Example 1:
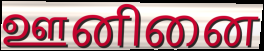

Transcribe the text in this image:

ஊனினை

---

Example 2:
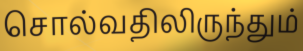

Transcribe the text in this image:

சொல்வதிலிருந்தும்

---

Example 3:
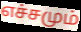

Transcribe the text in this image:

எச்சமும்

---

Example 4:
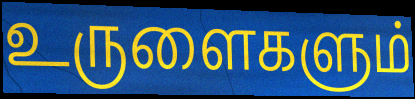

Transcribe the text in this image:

உருளைகளும்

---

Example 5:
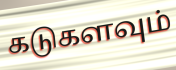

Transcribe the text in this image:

கடுகளவும்